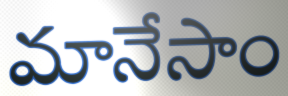
మానేసాం